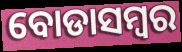
ବୋଡାସମ୍ବର